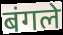
बंगले